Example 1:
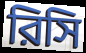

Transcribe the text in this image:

রিসি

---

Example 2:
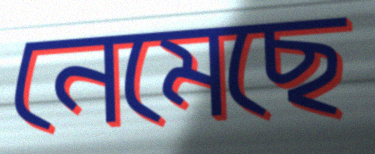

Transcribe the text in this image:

নেমেছে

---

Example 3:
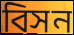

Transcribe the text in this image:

বিসন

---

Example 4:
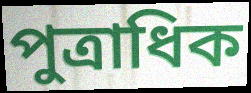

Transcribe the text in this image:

পুত্রাধিক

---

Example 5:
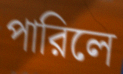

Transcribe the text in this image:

পারিলে